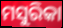
ମସୁରିକା